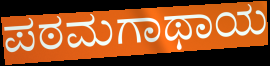
ಪಠಮಗಾಥಾಯ